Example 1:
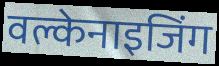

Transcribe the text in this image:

वल्केनाइजिंग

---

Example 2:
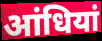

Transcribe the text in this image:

आंधियां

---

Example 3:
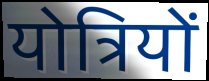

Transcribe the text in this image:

योत्रियों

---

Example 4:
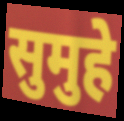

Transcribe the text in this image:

सुमुहे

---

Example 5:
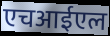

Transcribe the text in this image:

एचआईएल